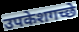
उपकेशगच्छे